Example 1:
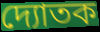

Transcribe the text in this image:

দ্যোতক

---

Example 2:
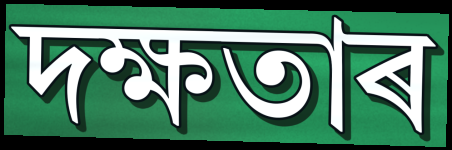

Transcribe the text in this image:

দক্ষতাৰ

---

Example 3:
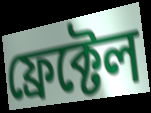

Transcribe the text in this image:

ফ্ৰেক্টেল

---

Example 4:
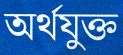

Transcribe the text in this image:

অৰ্থযুক্ত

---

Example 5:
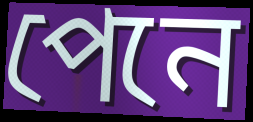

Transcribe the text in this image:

পেনে